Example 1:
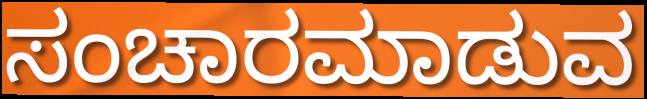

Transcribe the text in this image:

ಸಂಚಾರಮಾಡುವ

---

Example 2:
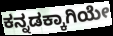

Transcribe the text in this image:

ಕನ್ನಡಕ್ಕಾಗಿಯೇ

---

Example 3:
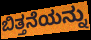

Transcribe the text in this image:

ಬಿತ್ತನೆಯನ್ನು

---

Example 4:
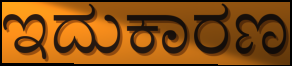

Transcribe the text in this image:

ಇದುಕಾರಣ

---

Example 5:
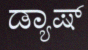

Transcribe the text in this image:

ಡ್ಯಾಷ್